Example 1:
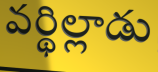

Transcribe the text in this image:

వర్థిల్లాడు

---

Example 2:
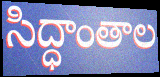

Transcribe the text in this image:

సిద్ధాంతాల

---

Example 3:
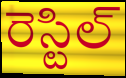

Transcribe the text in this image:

రెస్టిల్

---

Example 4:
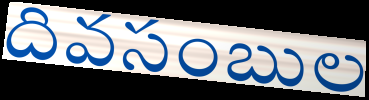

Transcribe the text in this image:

దివసంబుల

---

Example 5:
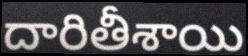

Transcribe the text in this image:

దారితీశాయి